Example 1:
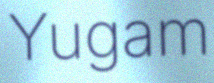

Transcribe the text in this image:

Yugam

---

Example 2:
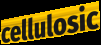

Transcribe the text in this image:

cellulosic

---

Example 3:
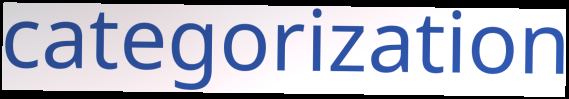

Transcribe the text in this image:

categorization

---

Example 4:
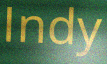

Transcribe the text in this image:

Indy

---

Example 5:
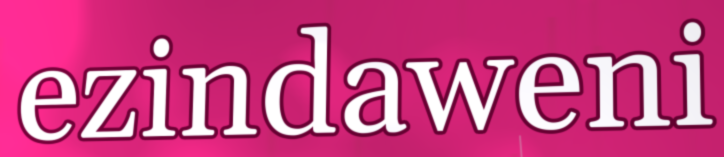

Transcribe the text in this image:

ezindaweni